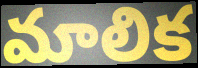
మాలిక